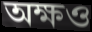
অক্ষও